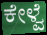
ಕೇಳ್ವೆ